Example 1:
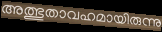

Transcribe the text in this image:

അത്ഭുതാവഹമായിരുന്നു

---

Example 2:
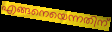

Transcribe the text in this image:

എങ്ങനെയെന്നതിന്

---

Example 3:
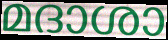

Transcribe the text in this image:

മദാശാ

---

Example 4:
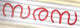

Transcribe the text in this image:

സരസ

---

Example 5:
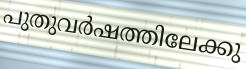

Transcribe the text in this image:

പുതുവർഷത്തിലേക്കു